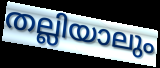
തല്ലിയാലും